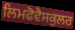
ਲਿਮਫੋਵੈਸਕੁਲਰ